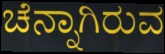
ಚೆನ್ನಾಗಿರುವ